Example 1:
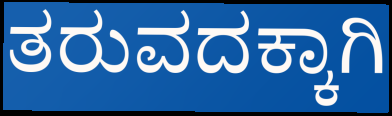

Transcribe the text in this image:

ತರುವದಕ್ಕಾಗಿ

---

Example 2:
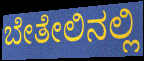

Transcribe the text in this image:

ಬೇತೇಲಿನಲ್ಲಿ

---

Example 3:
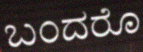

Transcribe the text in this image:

ಬಂದರೊ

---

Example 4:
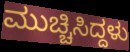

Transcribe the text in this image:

ಮುಚ್ಚಿಸಿದ್ದಳು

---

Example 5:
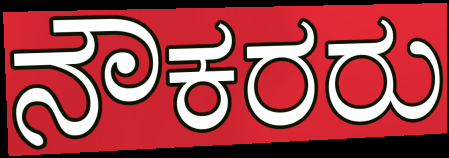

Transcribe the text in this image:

ನೌಕರರು